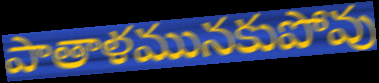
పాతాళమునకుపోవు